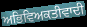
ਅਭਿਵਿਅਕਤੀਵਾਦੀ